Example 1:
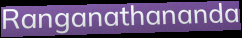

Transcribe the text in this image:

Ranganathananda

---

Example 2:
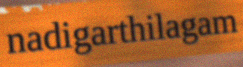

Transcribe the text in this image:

nadigarthilagam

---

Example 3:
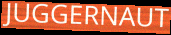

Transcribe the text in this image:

JUGGERNAUT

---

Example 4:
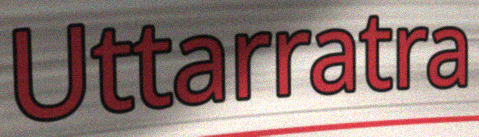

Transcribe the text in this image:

Uttarratra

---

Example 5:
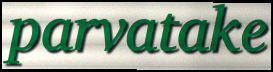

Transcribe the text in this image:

parvatake